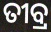
ତୀବ୍ର